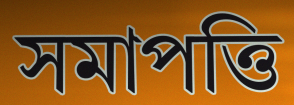
সমাপত্তি